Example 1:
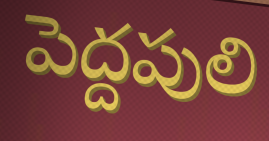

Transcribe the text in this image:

పెద్దపులి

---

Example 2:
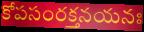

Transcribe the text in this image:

కోపసంరక్తనయనః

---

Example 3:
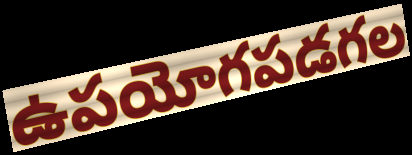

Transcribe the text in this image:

ఉపయోగపడగల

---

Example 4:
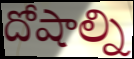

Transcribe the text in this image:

దోషాల్ని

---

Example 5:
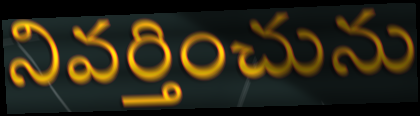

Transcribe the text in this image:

నివర్తించును